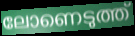
ലോണെടുത്ത്